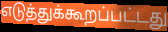
எடுத்துக்கூறப்பட்டது